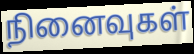
நினைவுகள்